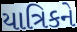
યાત્રિકને